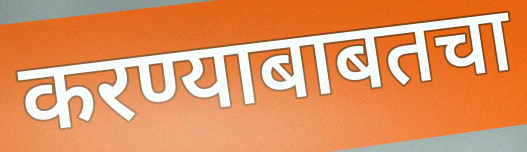
करण्याबाबतचा